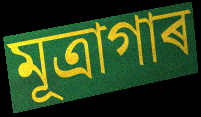
মূত্ৰাগাৰ